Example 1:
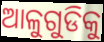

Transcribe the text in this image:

ଆଳୁଗୁଡିକୁ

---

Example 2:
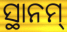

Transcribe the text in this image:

ସ୍ଥାନମ୍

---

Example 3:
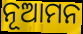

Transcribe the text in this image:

ନୂଆମନ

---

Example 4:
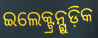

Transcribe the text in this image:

ଇଲେକ୍ଟ୍ରନ୍ଗୁଡ଼ିକ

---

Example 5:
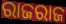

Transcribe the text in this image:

ରାଜରାଜ